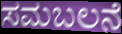
ಸಮಬಲನೆ